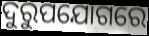
ଦୁରୁପଯୋଗରେ